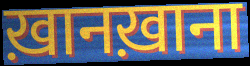
ख़ानख़ाना